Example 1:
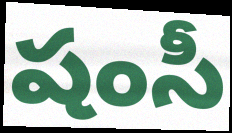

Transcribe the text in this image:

షంసీ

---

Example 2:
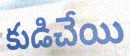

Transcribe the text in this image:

కుడిచేయి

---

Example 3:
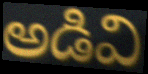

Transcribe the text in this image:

అడివి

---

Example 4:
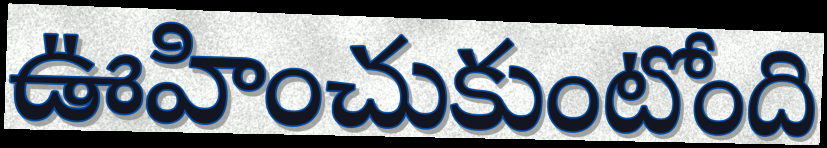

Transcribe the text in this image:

ఊహించుకుంటోంది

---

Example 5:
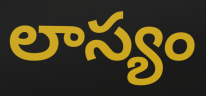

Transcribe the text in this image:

లాస్యం